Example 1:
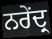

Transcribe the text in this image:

ਨਰੇਂਦ੍ਰ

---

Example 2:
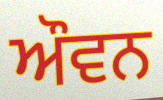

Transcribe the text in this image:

ਔਵਨ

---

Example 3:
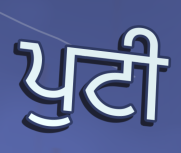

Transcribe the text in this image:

ਪੁਟੀ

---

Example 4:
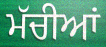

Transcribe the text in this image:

ਮੱਚੀਆਂ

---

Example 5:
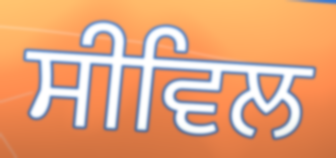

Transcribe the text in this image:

ਸੀਵਿਲ